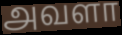
அவளா